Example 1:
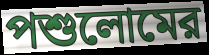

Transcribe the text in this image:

পশুলোমের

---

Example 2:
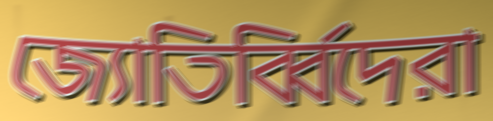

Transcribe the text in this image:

জ্যোতির্ব্বিদেরা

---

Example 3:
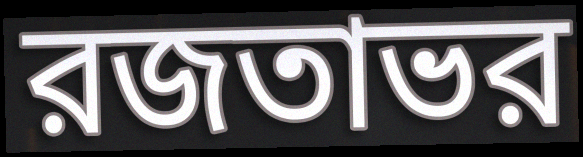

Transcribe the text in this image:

রজতাভর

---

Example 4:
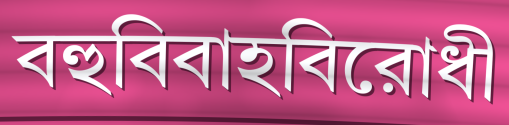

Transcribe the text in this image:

বহুবিবাহবিরোধী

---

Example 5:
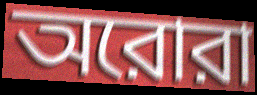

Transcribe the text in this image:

অরোরা